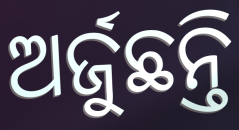
ଅର୍ଜୁଛନ୍ତି